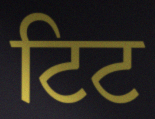
ਟਿਟ